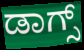
ಡಾಗ್ಸ್